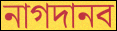
নাগদানব